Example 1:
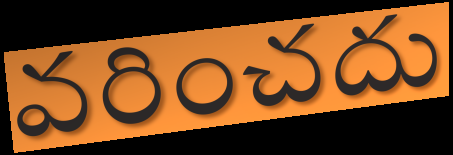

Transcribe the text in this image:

వరించదు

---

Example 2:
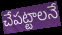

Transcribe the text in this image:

చేపట్టాలనే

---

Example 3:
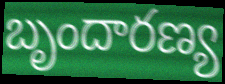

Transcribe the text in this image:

బృందారణ్య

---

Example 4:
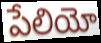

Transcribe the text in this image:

పేలియో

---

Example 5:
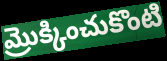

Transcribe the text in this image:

మ్రొక్కించుకొంటి